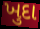
ખુદા